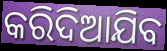
କରିଦିଆଯିବ